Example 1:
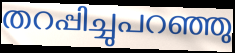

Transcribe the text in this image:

തറപ്പിച്ചുപറഞ്ഞു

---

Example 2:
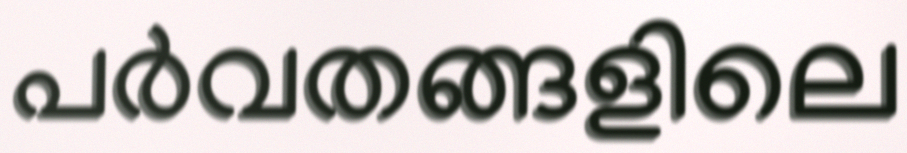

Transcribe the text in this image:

പർവതങ്ങളിലെ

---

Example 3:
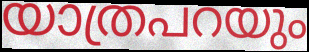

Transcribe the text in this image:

യാത്രപറയും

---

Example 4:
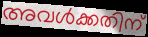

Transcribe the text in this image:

അവൾക്കതിന്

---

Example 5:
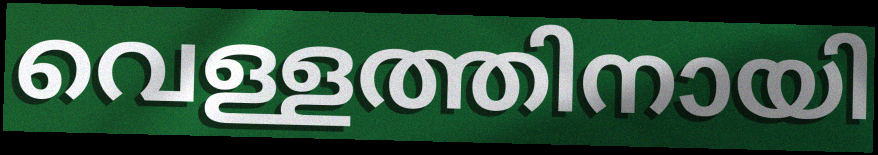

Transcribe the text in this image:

വെള്ളത്തിനായി